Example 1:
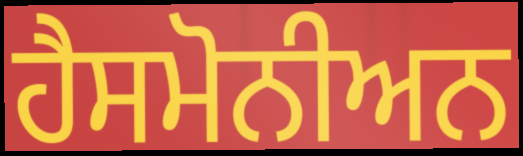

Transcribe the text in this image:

ਹੈਸਮੋਨੀਅਨ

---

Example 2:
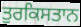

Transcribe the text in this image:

ਤੁਰਕਿਸਤਾਨ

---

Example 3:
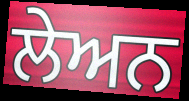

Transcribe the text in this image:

ਲੇਅਨ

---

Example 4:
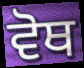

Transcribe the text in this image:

ਵੋਥ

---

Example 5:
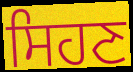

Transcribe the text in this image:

ਸਿਹਣ